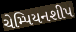
ચેમ્પિયનશીપ